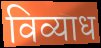
विव्याध